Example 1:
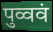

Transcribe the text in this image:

पुव्ववं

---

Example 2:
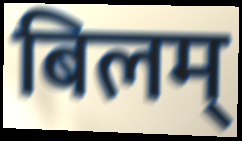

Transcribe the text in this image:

बिलम्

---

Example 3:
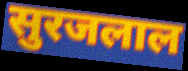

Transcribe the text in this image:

सुरजलाल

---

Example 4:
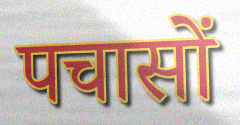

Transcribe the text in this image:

पचासों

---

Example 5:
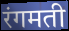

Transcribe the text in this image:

रंगमती